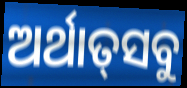
ଅର୍ଥାତ୍‌ସବୁ